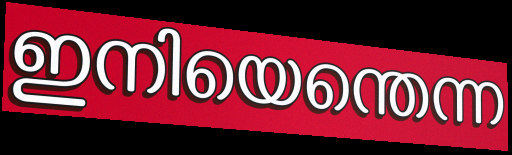
ഇനിയെന്തെന്ന